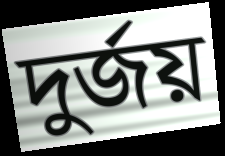
দুর্জয়